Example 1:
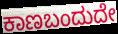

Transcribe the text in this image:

ಕಾಣಬಂದುದೇ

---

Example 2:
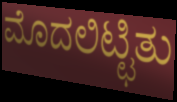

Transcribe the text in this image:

ಮೊದಲಿಟ್ಟಿತು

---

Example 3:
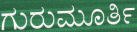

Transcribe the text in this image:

ಗುರುಮೂರ್ತಿ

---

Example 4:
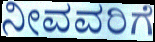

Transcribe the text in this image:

ನೀವವರಿಗೆ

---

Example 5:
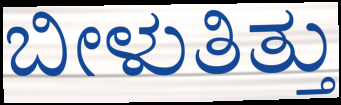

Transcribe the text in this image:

ಬೀಳುತಿತ್ತು